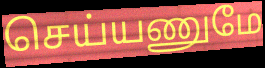
செய்யணுமே